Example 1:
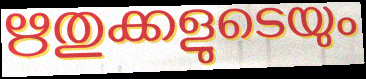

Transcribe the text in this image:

ഋതുക്കളുടെയും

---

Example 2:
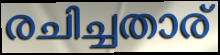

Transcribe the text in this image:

രചിച്ചതാര്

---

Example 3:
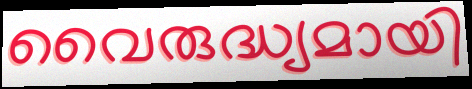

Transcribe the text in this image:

വൈരുദ്ധ്യമായി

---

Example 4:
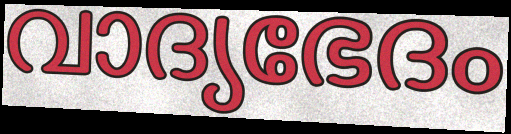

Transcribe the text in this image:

വാദ്യഭേദം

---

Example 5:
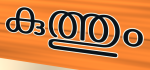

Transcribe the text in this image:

കുത്തും